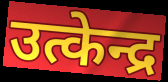
उत्केन्द्र